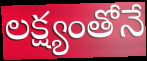
లక్ష్యంతోనే